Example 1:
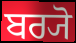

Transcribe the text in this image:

ਬਰ੍ਯੋ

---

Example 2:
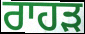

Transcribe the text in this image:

ਰਾਹੜ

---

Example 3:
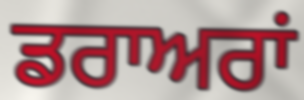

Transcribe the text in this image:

ਡਰਾਅਰਾਂ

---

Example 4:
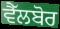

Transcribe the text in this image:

ਵੈੱਲਬੋਰ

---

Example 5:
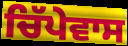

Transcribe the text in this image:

ਚਿੱਪੇਵਾਸ